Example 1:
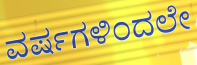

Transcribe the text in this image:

ವರ್ಷಗಳಿಂದಲೇ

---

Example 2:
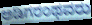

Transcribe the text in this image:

ಅಡಿಗರಂಥವರು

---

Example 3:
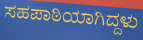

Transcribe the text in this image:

ಸಹಪಾಠಿಯಾಗಿದ್ದಳು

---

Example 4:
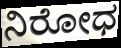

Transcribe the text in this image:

ನಿರೋಧ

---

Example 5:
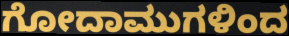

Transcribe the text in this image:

ಗೋದಾಮುಗಳಿಂದ